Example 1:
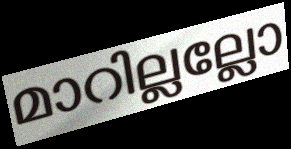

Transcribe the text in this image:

മാറില്ലല്ലോ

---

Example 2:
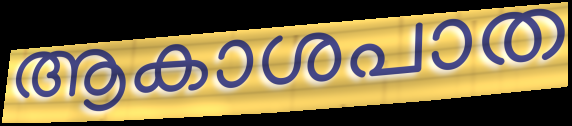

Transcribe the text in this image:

ആകാശപാത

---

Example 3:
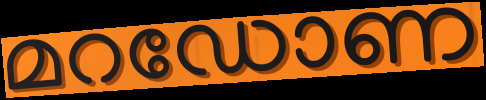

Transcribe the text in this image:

മറഡോണ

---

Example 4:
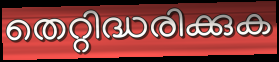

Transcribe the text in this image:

തെറ്റിദ്ധരിക്കുക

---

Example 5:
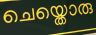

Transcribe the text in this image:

ചെയ്തൊരു